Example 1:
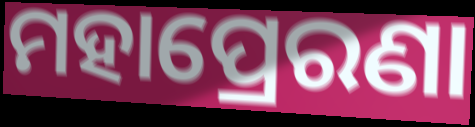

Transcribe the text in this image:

ମହାପ୍ରେରଣା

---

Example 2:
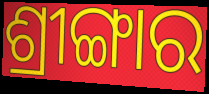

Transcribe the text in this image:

ଶ୍ରୀଙ୍ଗାର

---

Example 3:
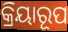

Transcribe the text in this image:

କ୍ରିୟାରୂପ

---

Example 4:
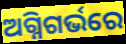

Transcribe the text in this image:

ଅଗ୍ନିଗର୍ଭରେ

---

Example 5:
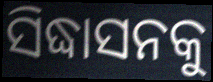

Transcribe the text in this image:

ସିଦ୍ଧାସନକୁ